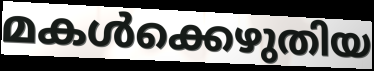
മകൾക്കെഴുതിയ